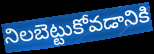
నిలబెట్టుకోవడానికి